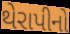
થેરાપીનો